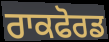
ਰਾਕਫੋਰਡ